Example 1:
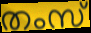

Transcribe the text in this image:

തംസ്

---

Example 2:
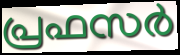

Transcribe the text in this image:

പ്രഫസർ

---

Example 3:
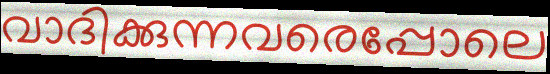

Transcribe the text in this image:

വാദിക്കുന്നവരെപ്പോലെ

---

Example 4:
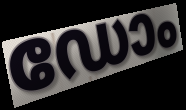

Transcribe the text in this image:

ഡോം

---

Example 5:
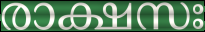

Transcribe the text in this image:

രാക്ഷസഃ